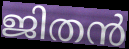
ജിതൻ